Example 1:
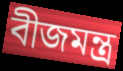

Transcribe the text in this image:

বীজমন্ত্র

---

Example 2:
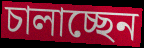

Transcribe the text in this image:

চালাচ্ছেন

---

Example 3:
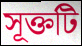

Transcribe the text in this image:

সূক্তটি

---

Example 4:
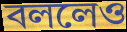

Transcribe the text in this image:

বললেও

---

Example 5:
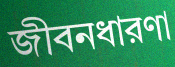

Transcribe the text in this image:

জীবনধারণা